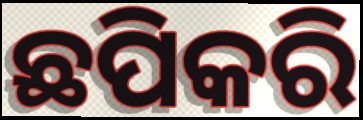
ଛପିକରି